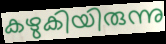
കഴുകിയിരുന്നു